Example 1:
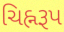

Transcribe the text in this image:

ચિહ્નરૂપ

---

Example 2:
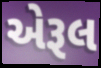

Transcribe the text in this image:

એરૂલ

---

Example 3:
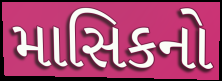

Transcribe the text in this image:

માસિકનો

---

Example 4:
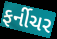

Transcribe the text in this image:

ફર્નીચર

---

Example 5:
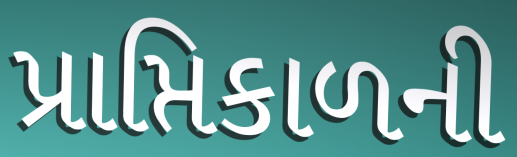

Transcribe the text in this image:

પ્રાપ્તિકાળની